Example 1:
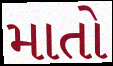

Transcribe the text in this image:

માતો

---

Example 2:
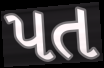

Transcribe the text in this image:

પત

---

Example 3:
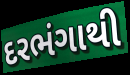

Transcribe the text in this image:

દરભંગાથી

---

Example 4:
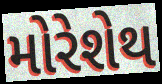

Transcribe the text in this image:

મોરેશેથ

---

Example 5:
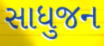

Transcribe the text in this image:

સાધુજન